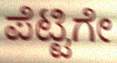
ಪೆಟ್ಟಿಗೇ